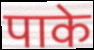
पाके